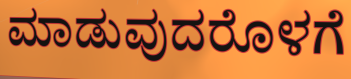
ಮಾಡುವುದರೊಳಗೆ